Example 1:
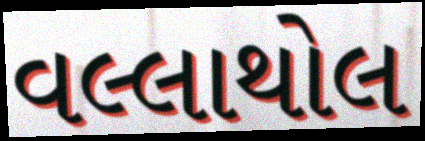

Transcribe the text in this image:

વલ્લાથોલ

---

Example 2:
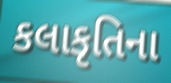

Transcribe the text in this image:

કલાકૃતિના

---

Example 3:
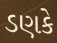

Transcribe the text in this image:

ડણકે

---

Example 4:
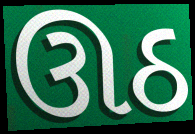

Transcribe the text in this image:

ઊઠ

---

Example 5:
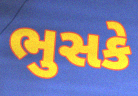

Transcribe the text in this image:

ભુસકે